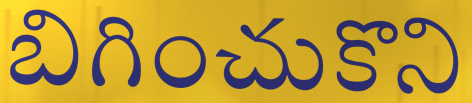
బిగించుకొని